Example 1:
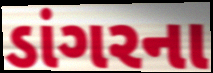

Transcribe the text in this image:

ડાંગરના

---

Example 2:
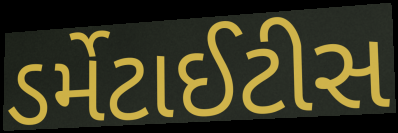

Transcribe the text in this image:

ડર્મેટાઈટીસ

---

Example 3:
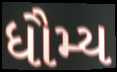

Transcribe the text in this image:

ધૌમ્ય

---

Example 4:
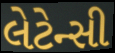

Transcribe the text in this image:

લેટેન્સી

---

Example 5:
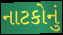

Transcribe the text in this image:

નાટકોનું